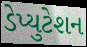
ડેપ્યુટેશન